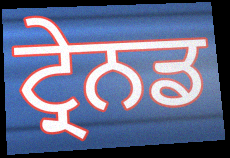
ਟ੍ਰੇਨਡ